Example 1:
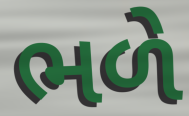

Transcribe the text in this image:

ભળે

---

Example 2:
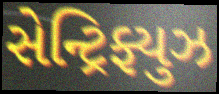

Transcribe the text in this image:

સેન્ટ્રિફ્યુઝ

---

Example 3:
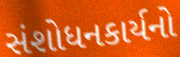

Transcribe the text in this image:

સંશોધનકાર્યનો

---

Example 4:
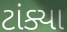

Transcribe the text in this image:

ટાંક્યા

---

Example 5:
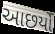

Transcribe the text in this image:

આછર્યો